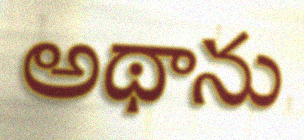
అథాను